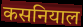
कसनियाल